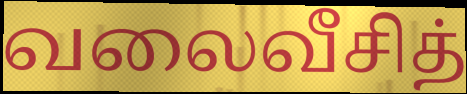
வலைவீசித்